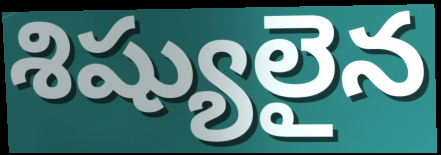
శిష్యులైన